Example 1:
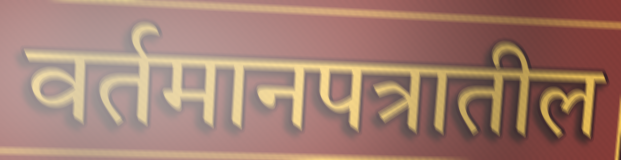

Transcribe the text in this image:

वर्तमानपत्रातील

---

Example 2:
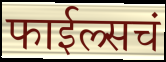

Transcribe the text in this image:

फाईल्सचं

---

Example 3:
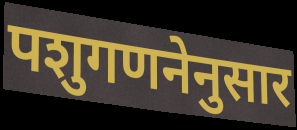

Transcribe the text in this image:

पशुगणनेनुसार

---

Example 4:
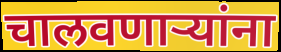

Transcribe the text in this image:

चालवणार्‍यांना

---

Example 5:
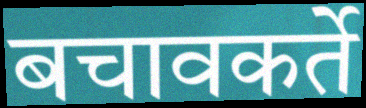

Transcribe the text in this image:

बचावकर्ते